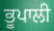
ਭੂਪਾਲੀ